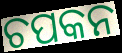
ଚପକନ